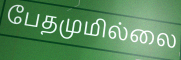
பேதமுமில்லை